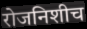
रोजनिशीच